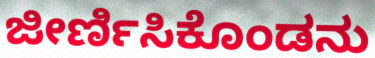
ಜೀರ್ಣಿಸಿಕೊಂಡನು